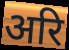
अरि